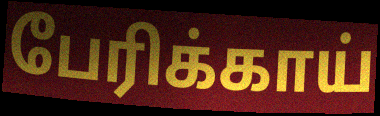
பேரிக்காய்